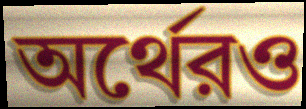
অর্থেরও